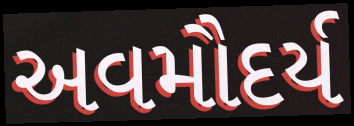
અવમૌદર્ય